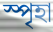
স্পৃহা